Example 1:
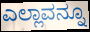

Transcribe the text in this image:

ಎಲ್ಲಾವನ್ನೂ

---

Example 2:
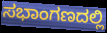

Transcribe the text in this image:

ಸಭಾಂಗಣದಲ್ಲಿ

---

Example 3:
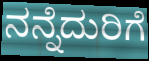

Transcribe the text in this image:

ನನ್ನೆದುರಿಗೆ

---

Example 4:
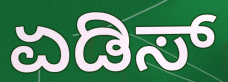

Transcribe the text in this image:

ಏಡಿಸ್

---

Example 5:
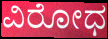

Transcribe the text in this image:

ವಿರೋಧ